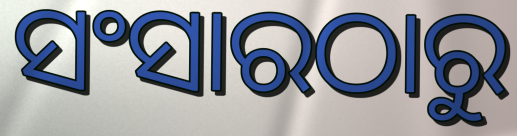
ସଂସାରଠାରୁ